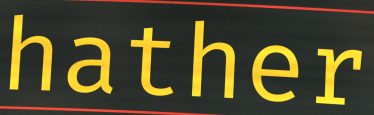
hather